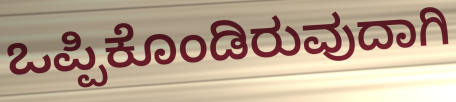
ಒಪ್ಪಿಕೊಂಡಿರುವುದಾಗಿ